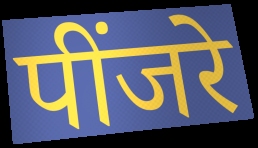
पींजरे